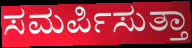
ಸಮರ್ಪಿಸುತ್ತಾ